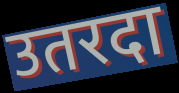
उतरदा